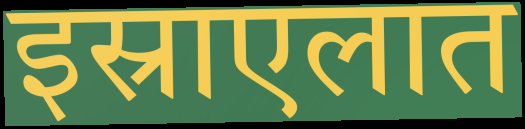
इस्राएलात